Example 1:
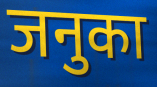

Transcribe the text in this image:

जनुका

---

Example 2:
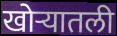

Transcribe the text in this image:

खोऱ्यातली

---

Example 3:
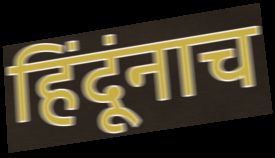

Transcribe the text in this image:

हिंदूंनाच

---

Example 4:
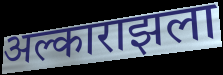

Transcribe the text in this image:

अल्काराझला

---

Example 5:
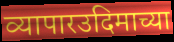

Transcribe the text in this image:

व्यापारउदिमाच्या